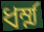
ধৰ্ম্ম